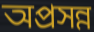
অপ্রসন্ন